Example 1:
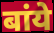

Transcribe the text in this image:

बांये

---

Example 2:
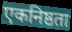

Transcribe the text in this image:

एकनिष्ठता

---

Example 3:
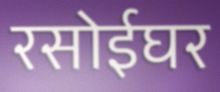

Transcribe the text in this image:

रसोईघर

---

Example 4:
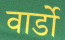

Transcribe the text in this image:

वार्डो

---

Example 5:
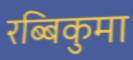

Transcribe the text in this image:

रब्बिकुमा